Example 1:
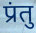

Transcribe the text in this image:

प्रंतु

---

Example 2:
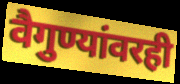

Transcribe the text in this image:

वैगुण्यांवरही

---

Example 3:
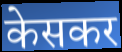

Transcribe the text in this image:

केसकर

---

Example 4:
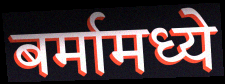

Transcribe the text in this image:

बर्मामध्ये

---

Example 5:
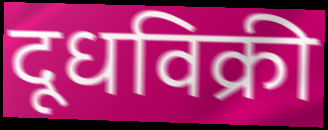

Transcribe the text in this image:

दूधविक्री